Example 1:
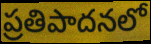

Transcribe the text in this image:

ప్రతిపాదనలో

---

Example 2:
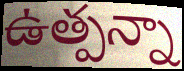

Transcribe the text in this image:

ఉత్పన్నా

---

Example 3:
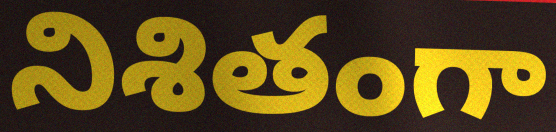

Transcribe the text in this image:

నిశితంగా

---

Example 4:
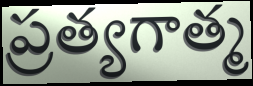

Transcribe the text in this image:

ప్రత్యగాత్మ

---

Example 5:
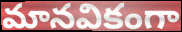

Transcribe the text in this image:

మానవికంగా